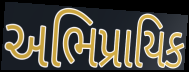
અભિપ્રાયિક